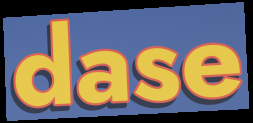
dase